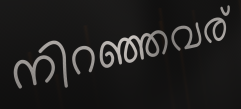
നിറഞ്ഞവര്